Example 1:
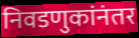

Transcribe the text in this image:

निवडणुकांनंतर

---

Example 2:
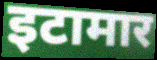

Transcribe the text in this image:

इटामार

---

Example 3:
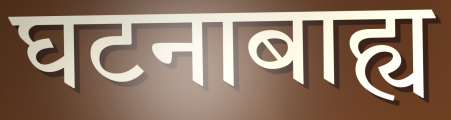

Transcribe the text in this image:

घटनाबाह्य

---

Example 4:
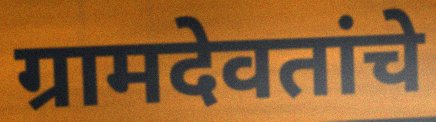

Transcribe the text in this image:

ग्रामदेवतांचे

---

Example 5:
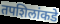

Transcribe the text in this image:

तपशिलांकडे